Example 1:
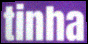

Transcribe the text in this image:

tinha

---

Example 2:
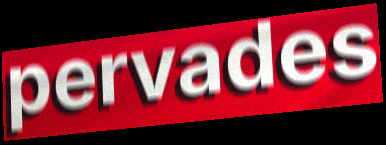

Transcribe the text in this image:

pervades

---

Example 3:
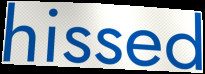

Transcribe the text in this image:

hissed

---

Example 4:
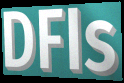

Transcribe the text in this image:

DFIs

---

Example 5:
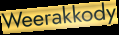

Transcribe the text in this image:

Weerakkody